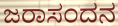
ಜರಾಸಂದನ